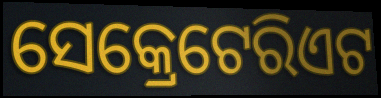
ସେକ୍ରେଟେରିଏଟ